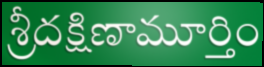
శ్రీదక్షిణామూర్తిం